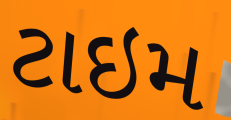
ટાઇમ